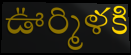
ఊర్మిళకి